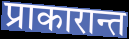
प्राकारान्त